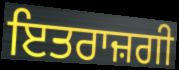
ਇਤਰਾਜ਼ਗੀ